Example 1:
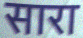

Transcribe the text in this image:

सारा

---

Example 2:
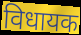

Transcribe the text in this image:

विधायक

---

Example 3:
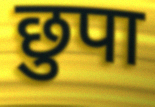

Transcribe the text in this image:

छुपा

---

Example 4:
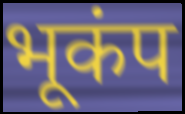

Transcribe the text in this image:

भूकंप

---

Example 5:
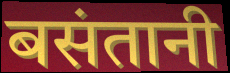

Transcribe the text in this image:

बसंतानी